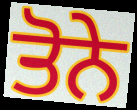
ਤੋਨੇ